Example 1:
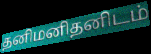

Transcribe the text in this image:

தனிமனிதனிடம்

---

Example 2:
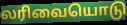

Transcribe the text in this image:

லரிவையொடு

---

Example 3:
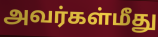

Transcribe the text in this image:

அவர்கள்மீது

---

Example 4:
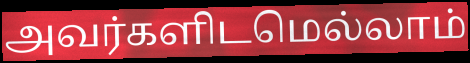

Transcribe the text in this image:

அவர்களிடமெல்லாம்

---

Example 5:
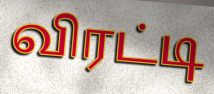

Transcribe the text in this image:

விரட்டி